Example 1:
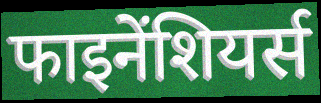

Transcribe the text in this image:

फाइनेंशियर्स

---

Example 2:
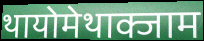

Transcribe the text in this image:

थायोमेथाक्जाम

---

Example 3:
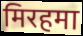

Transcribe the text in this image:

मिरहमा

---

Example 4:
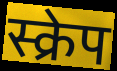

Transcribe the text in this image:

स्क्रेप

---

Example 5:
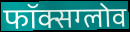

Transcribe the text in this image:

फॉक्सग्लोव